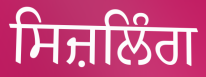
ਸਿਜ਼ਲਿੰਗ